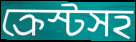
ক্রেস্টসহ